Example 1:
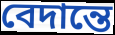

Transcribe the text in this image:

বেদান্তে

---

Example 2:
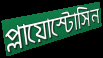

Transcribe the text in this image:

প্লায়োস্টোসিন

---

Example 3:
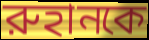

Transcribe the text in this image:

রুহানকে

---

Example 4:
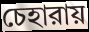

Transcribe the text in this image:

চেহারায়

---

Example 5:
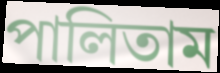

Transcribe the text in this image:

পালিতাম